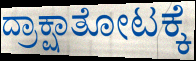
ದ್ರಾಕ್ಷಾತೋಟಕ್ಕೆ